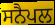
ਸਨੈਪਲ